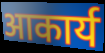
आकार्य